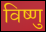
विष्णु